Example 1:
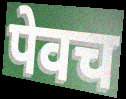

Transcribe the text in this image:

पेवच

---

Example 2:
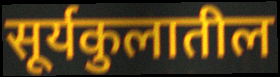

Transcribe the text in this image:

सूर्यकुलातील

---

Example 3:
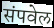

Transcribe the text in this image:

संपवेल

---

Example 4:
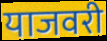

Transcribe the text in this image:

याजवरी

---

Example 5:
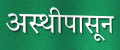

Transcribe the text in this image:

अस्थीपासून